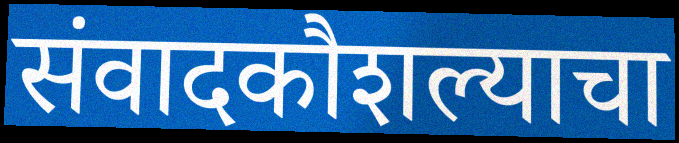
संवादकौशल्याचा